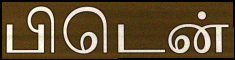
பிடென்